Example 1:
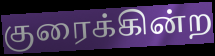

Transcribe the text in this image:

குரைக்கின்ற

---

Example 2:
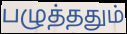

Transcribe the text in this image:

பழுத்ததும்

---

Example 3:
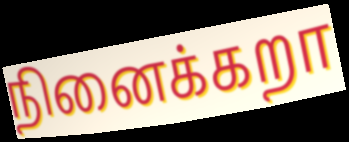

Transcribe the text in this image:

நினைக்கறா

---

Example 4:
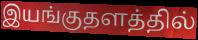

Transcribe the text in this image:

இயங்குதளத்தில்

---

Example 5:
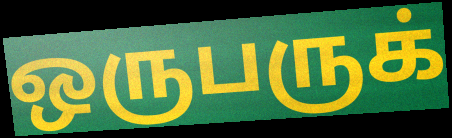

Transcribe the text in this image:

ஒருபருக்